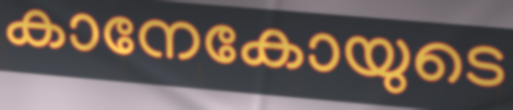
കാനേകോയുടെ